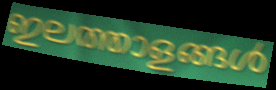
ഇലത്താളങ്ങൾ